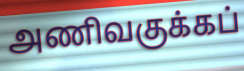
அணிவகுக்கப்